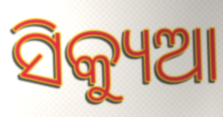
ସିକ୍ୟୁଆ